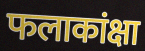
फलाकांक्षा